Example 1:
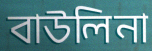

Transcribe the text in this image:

বাউলিনা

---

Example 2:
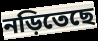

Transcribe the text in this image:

নড়িতেছে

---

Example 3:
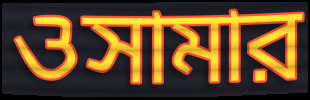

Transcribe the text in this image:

ওসামার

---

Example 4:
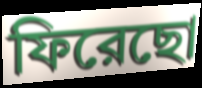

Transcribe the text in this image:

ফিরেছো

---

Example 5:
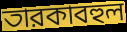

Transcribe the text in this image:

তারকাবহুল